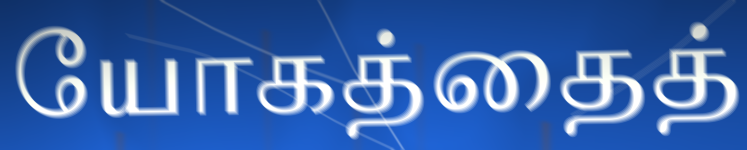
யோகத்தைத்